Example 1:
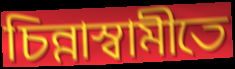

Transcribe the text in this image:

চিন্নাস্বামীতে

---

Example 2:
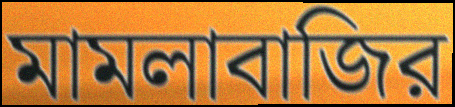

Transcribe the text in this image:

মামলাবাজির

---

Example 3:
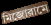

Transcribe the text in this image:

মিজোরামে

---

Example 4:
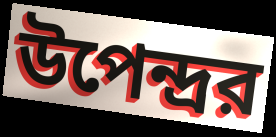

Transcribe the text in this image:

উপেন্দ্রর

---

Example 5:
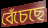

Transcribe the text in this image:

বেঁচেছে